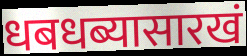
धबधब्यासारखं